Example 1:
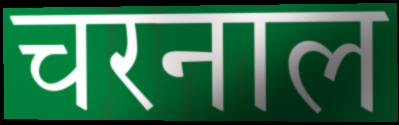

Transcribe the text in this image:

चरनाल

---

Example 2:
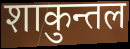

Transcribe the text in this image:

शाकुन्तल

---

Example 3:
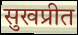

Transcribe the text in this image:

सुखप्रीत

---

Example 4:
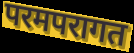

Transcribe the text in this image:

परमपरागत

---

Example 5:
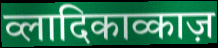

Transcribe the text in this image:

व्लादिकाव्काज़